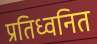
प्रतिध्वनित